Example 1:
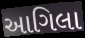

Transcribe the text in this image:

આગિલા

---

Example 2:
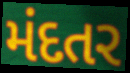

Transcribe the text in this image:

મંદતર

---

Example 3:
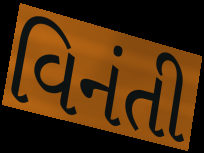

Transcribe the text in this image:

વિનંતી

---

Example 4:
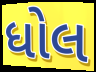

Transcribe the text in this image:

ધોલ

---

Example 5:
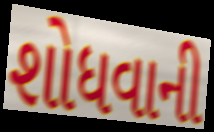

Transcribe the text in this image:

શોધવાની